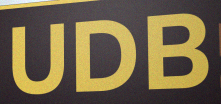
UDB